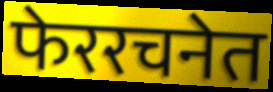
फेररचनेत